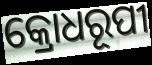
କ୍ରୋଧରୂପୀ